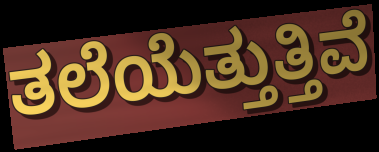
ತಲೆಯೆತ್ತುತ್ತಿವೆ